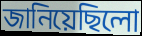
জানিয়েছিলো